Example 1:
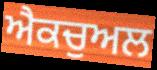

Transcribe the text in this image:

ਐਕਚੁਅਲ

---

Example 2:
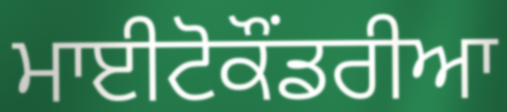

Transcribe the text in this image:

ਮਾਈਟੋਕੌਂਡਰੀਆ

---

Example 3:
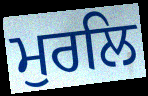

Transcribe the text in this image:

ਮੁਰਲਿ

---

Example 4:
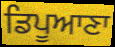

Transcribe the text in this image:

ਡਿਪੂਆਣਾ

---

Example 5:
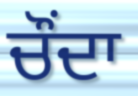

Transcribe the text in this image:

ਚੌਂਦਾ